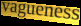
vagueness